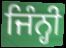
ਜਿੰਨ੍ਹੀ